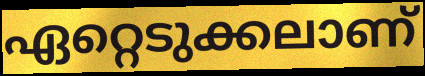
ഏറ്റെടുക്കലാണ്